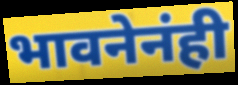
भावनेनंही